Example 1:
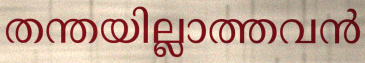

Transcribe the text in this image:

തന്തയില്ലാത്തവൻ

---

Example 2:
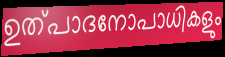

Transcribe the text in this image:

ഉത്പാദനോപാധികളും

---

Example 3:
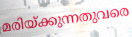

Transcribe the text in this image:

മരിയ്ക്കുന്നതുവരെ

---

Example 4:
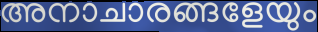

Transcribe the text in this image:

അനാചാരങ്ങളേയും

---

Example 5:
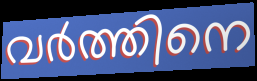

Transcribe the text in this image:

വർത്തിനെ